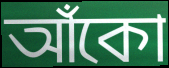
আঁকো